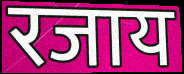
रजाय